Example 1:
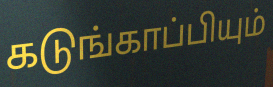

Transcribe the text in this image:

கடுங்காப்பியும்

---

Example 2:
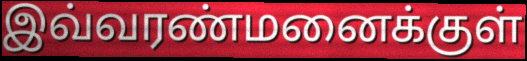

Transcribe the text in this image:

இவ்வரண்மனைக்குள்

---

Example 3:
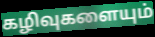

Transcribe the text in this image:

கழிவுகளையும்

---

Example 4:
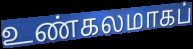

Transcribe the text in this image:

உண்கலமாகப்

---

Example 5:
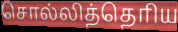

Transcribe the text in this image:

சொல்லித்தெரிய